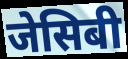
जेसिबी